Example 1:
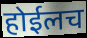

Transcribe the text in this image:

होईलच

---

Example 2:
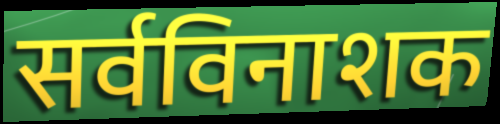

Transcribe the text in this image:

सर्वविनाशक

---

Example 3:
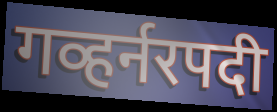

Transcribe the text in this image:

गव्हर्नरपदी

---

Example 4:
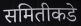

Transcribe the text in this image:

समितीकडे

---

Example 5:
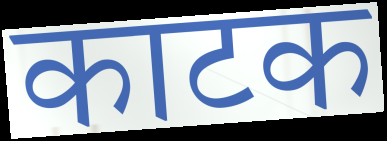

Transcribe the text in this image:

काटक